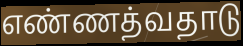
எண்ணத்வதாடு